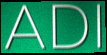
ADI